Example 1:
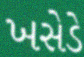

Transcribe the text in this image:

ખસેડે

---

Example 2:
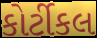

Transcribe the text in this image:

કોર્ટીકલ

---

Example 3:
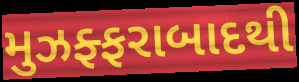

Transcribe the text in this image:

મુઝફ્ફરાબાદથી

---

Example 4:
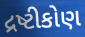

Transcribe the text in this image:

દ્રષ્ટીકોણ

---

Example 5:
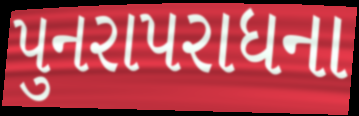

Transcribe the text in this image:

પુનરાપરાધના